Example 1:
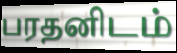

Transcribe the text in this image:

பரதனிடம்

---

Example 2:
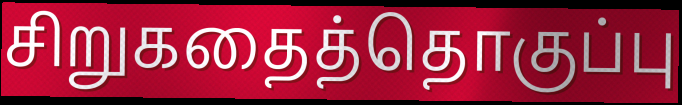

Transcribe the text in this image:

சிறுகதைத்தொகுப்பு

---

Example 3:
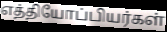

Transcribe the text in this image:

எத்தியோப்பியர்கள்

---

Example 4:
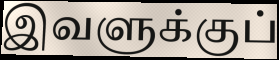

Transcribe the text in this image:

இவளுக்குப்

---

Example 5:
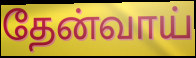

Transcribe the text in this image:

தேன்வாய்